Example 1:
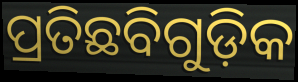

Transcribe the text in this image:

ପ୍ରତିଛବିଗୁଡ଼ିକ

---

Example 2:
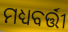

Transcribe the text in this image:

ମଧ୍ୟବର୍ତ୍ତୀ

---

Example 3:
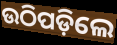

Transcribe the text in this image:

ଉଠିପଡ଼ିଲେ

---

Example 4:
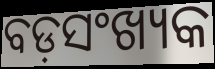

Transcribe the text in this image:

ବଡ଼ସଂଖ୍ୟକ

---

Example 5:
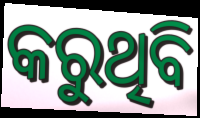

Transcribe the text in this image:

କରୁଥିବି